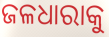
ଜଳଧାରାକୁ